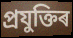
প্ৰযুক্তিৰ